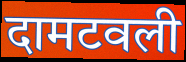
दामटवली